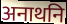
अनाथनि